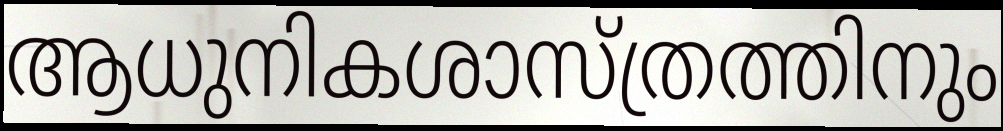
ആധുനികശാസ്ത്രത്തിനും